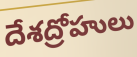
దేశద్రోహులు